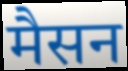
मैसन